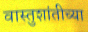
वास्तुशांतीच्या